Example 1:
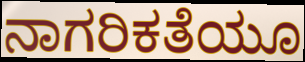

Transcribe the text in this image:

ನಾಗರಿಕತೆಯೂ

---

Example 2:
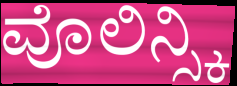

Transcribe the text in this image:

ವೊಲಿನ್ಸ್ಕಿ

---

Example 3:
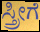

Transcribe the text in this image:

ಸ್ತ್ರೀಗೆ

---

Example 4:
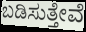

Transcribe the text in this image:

ಬಡಿಸುತ್ತೇವೆ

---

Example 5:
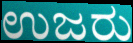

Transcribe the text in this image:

ಉಜರು